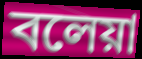
বলেয়া